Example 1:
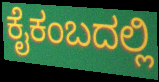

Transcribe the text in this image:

ಕೈಕಂಬದಲ್ಲಿ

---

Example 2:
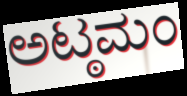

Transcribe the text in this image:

ಅಟ್ಠಮಂ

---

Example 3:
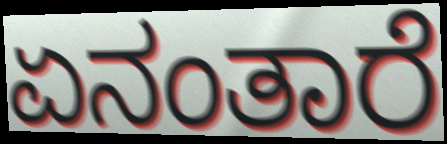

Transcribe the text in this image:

ಏನಂತಾರೆ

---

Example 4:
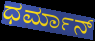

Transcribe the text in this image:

ಧರ್ಮಾನ್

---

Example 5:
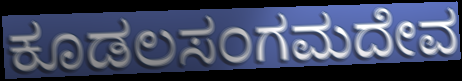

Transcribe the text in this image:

ಕೂಡಲಸಂಗಮದೇವ